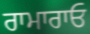
ਰਾਮਾਰਾਓ